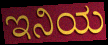
ಇನಿಯ